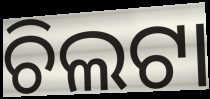
ଚିଲଟା